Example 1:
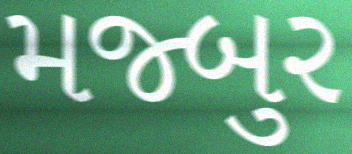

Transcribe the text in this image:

મજ્બુર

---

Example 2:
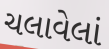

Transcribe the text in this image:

ચલાવેલાં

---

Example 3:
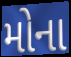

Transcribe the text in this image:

મોના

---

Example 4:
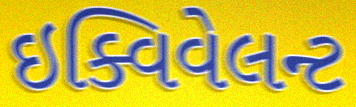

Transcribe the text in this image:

ઇક્વિવેલન્ટ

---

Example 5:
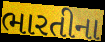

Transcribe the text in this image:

ભારતીના